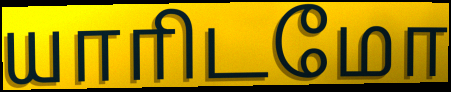
யாரிடமோ